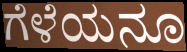
ಗೆಳೆಯನೂ